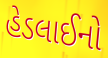
હેડલાઈનો